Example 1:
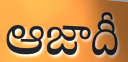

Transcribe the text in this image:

ఆజాదీ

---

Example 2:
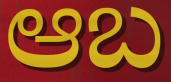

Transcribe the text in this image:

ఆబ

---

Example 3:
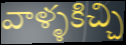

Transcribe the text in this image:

వాళ్ళకిచ్చి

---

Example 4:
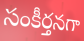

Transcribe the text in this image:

సంకీర్తనగా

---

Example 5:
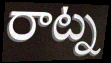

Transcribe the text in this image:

రాట్న